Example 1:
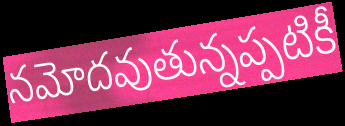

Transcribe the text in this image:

నమోదవుతున్నప్పటికీ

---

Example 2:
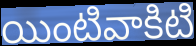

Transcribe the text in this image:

యింటివాకిటి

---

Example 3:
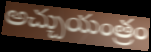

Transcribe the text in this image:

అచ్చుయంత్రం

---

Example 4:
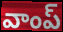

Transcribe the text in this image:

వాంప్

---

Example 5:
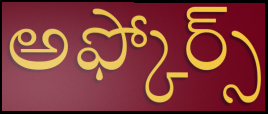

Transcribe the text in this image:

అఫ్కోర్స్